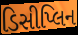
ડિસીપ્લિન